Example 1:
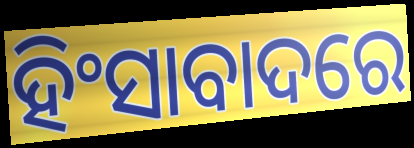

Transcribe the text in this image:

ହିଂସାବାଦରେ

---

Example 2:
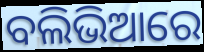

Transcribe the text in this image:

ବଲିଭିଆରେ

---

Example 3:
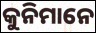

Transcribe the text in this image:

କୁନିମାନେ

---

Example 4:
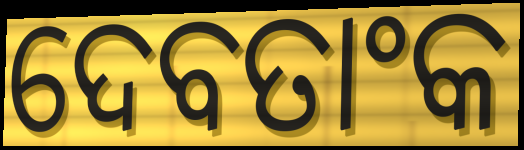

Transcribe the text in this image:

ଦେବତାଂକ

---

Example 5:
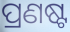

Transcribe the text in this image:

ପ୍ରଣଷ୍ଟ